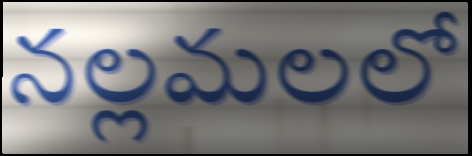
నల్లమలలో